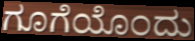
ಗೂಗೆಯೊಂದು